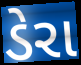
ડેરા